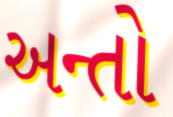
અન્તો